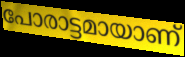
പോരാട്ടമായാണ്